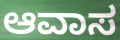
ಆವಾಸ